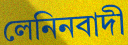
লেনিনবাদী